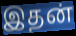
இதன்